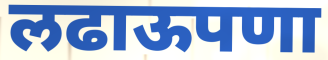
लढाऊपणा